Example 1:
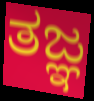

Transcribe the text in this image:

ತಜ್ಞ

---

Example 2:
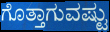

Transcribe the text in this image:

ಗೊತ್ತಾಗುವಷ್ಟು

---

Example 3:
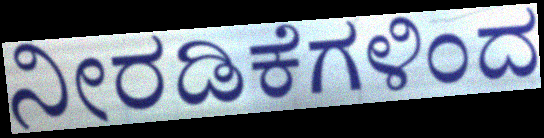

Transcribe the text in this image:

ನೀರಡಿಕೆಗಳಿಂದ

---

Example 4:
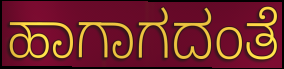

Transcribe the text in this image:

ಹಾಗಾಗದಂತೆ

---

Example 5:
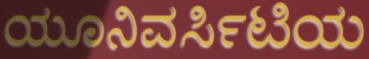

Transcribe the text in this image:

ಯೂನಿವರ್ಸಿಟಿಯ